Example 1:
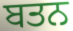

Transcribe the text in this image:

ਬਤਨ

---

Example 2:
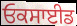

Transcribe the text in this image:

ਓਕਸਾਈਡ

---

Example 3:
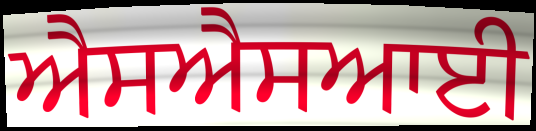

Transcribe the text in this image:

ਐਸਐਸਆਈ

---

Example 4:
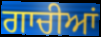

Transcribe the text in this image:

ਗਾਚੀਆਂ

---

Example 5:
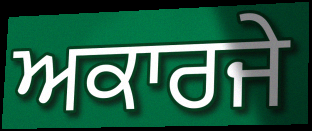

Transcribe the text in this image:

ਅਕਾਰਜੇ